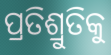
ପ୍ରତିଶ୍ରୁତିକୁ